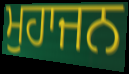
ਮੁਹਾਜਨ